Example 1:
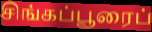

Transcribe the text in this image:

சிங்கப்பூரைப்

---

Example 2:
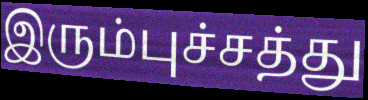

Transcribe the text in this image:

இரும்புச்சத்து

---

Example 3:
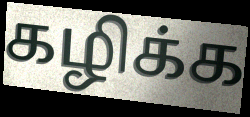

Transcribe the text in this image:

கழிக்க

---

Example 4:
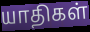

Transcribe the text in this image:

யாதிகள்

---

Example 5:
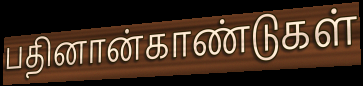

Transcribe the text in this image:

பதினான்காண்டுகள்